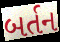
બર્તન